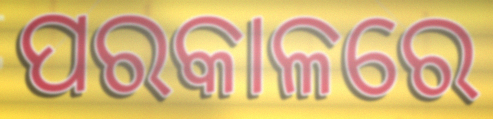
ପରକାଳରେ